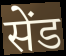
सेंड